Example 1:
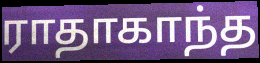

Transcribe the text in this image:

ராதாகாந்த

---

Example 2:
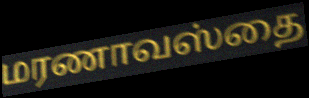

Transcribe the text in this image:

மரணாவஸ்தை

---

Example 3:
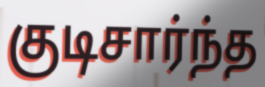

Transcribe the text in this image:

குடிசார்ந்த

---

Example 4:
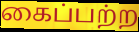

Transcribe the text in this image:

கைப்பற்ற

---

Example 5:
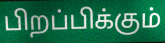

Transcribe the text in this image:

பிறப்பிக்கும்